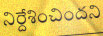
నిర్దేశించిందని